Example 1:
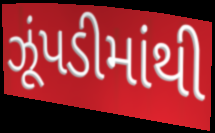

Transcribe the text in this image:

ઝૂંપડીમાંથી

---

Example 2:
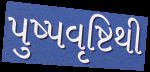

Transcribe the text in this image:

પુષ્પવૃષ્ટિથી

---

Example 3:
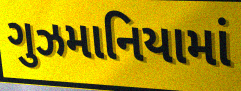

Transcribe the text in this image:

ગુઝમાનિયામાં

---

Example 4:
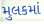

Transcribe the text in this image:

મુલકમાં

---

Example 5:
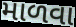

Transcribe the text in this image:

માળવા